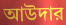
আউদার